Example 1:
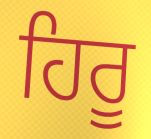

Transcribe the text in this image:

ਹਿਰੂ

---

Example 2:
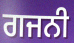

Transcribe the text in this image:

ਗਜਨੀ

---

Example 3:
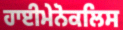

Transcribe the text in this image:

ਹਾਈਮੇਨੋਕਲਿਸ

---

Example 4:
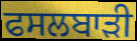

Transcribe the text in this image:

ਫਸਲਬਾੜੀ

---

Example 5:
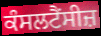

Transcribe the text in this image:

ਕੰਸਲਟੈਂਸੀਜ਼